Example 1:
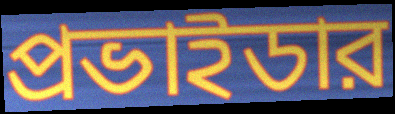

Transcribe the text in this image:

প্রভাইডার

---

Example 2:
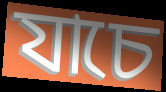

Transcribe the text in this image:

যাচে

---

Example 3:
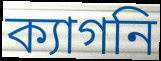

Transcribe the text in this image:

ক্যাগনি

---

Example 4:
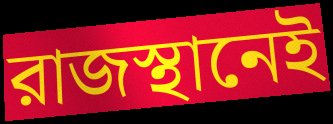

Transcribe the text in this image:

রাজস্থানেই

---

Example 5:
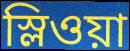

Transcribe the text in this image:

স্লিওয়া